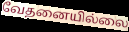
வேதனையில்லை